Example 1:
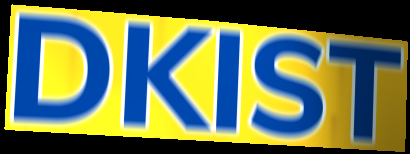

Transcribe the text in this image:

DKIST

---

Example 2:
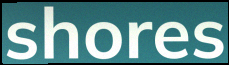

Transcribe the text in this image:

shores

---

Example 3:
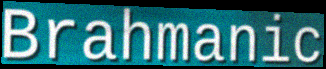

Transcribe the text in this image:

Brahmanic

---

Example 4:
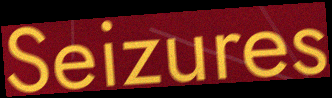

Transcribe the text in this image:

Seizures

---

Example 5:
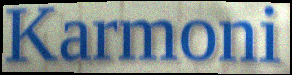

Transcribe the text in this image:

Karmoni